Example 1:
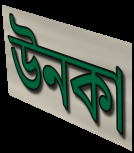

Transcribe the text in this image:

উনকা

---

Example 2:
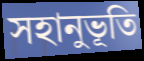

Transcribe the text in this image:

সহানুভূতি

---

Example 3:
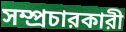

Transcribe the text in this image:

সম্প্রচারকারী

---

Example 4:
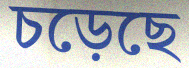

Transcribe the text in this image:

চড়েছে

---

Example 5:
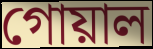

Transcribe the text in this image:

গোয়াল